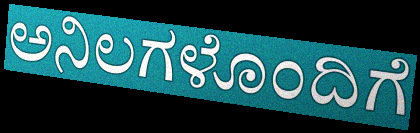
ಅನಿಲಗಳೊಂದಿಗೆ